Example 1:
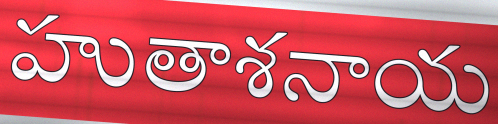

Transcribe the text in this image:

హుతాశనాయ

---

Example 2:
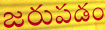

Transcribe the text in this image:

జరుపడం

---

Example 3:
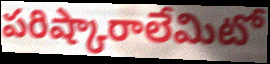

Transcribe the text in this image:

పరిష్కారాలేమిటో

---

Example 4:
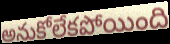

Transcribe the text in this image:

అనుకోలేకపోయింది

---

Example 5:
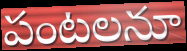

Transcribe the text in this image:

పంటలనూ